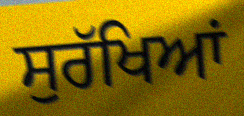
ਸੁਰੱਖਿਆਂ